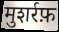
मुशर्रफ़